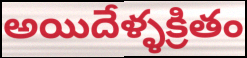
అయిదేళ్ళక్రితం